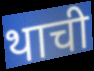
थाची